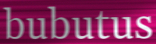
bubutus